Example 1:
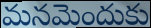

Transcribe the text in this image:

మనమెందుకు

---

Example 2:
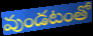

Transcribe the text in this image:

వుండటంతో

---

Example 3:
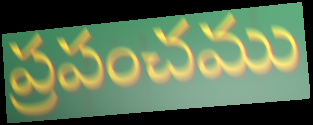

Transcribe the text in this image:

ప్రపంచము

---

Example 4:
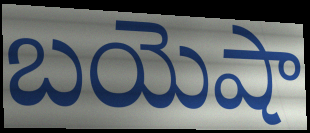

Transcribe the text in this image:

బయెషా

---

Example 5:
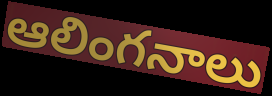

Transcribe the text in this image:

ఆలింగనాలు